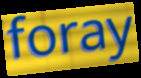
foray